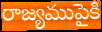
రాజ్యముపైకి